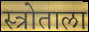
स्त्रोताला